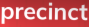
precinct